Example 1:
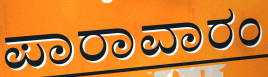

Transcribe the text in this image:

ಪಾರಾವಾರಂ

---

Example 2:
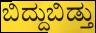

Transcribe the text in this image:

ಬಿದ್ದುಬಿಡ್ತು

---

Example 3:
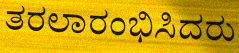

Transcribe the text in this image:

ತರಲಾರಂಭಿಸಿದರು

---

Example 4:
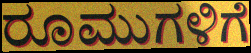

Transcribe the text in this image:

ರೂಮುಗಳಿಗೆ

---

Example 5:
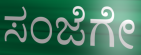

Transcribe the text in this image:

ಸಂಜೆಗೇ